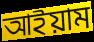
আইয়াম